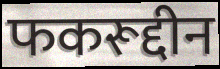
फकरूद्दीन